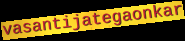
vasantijategaonkar